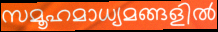
സമൂഹമാധ്യമങ്ങളിൽ